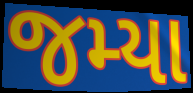
જમ્યા